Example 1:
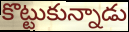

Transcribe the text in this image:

కొట్టుకున్నాడు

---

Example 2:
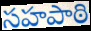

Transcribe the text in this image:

సహపాఠి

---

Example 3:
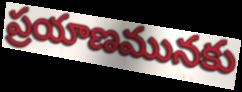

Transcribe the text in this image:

ప్రయాణమునకు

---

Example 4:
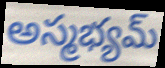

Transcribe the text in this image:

అస్మభ్యమ్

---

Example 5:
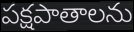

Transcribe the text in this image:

పక్షపాతాలను